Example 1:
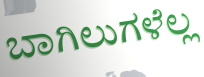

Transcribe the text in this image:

ಬಾಗಿಲುಗಳೆಲ್ಲ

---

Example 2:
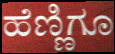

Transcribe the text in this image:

ಹೆಣ್ಣಿಗೂ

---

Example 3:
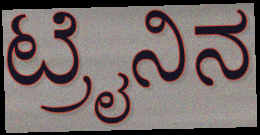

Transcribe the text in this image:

ಟ್ರೈನಿನ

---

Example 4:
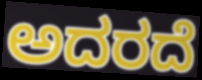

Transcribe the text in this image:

ಅದರದೆ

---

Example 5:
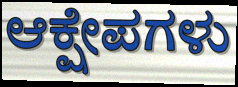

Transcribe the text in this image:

ಆಕ್ಷೇಪಗಳು